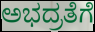
ಅಭದ್ರತೆಗೆ